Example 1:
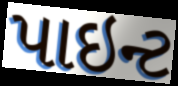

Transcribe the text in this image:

પાઇન્ટ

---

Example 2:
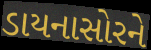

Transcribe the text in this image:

ડાયનાસોરને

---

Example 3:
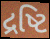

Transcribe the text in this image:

દ્રષ્ટિ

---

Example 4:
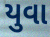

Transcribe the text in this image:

યુવા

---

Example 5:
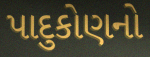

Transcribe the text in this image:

પાદુકોણનો